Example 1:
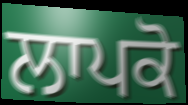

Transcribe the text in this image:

ਲਾਪਕੋ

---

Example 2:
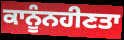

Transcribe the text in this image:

ਕਾਨੂੰਨਹੀਣਤਾ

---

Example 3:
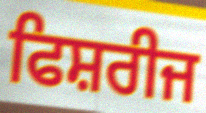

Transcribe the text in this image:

ਫਿਸ਼ਰੀਜ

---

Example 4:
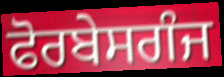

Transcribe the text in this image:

ਫੋਰਬੇਸਗੰਜ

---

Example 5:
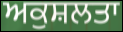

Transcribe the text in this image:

ਅਕੁਸ਼ਲਤਾ